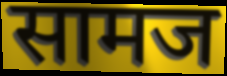
सामज